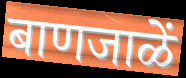
बाणजाळें